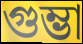
গুম্ভা